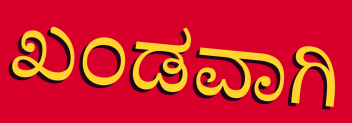
ಖಂಡವಾಗಿ